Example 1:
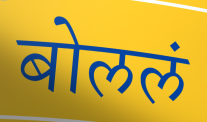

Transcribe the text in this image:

बोललं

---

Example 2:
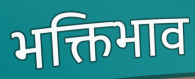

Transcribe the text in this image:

भक्तिभाव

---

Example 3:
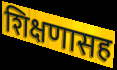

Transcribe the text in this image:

शिक्षणासह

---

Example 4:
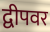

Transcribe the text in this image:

द्वीपवर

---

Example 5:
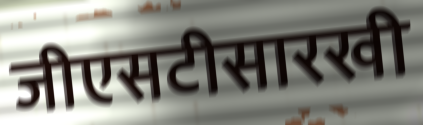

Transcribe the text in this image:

जीएसटीसारखी